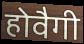
होवैगी